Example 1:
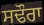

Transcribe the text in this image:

ਸਢੌਰਾ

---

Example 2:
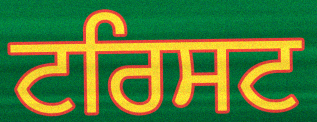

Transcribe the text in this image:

ਟਰਿਸਟ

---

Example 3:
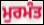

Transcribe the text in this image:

ਮੁਰਮੰਤ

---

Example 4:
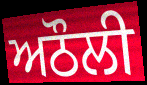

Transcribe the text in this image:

ਅਠੌਲੀ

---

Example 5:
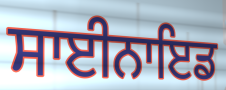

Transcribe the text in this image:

ਸਾਈਨਾਇਡ